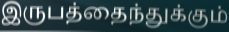
இருபத்தைந்துக்கும்